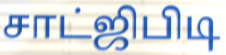
சாட்ஜிபிடி